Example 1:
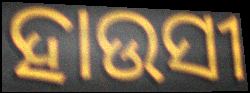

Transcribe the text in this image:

ହାଉସୀ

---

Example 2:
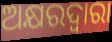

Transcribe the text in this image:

ଅକ୍ଷରଦ୍ଵାରା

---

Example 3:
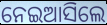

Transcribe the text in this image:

ନେଇଆସିଲେ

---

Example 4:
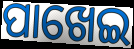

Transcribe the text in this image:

ପାଖେଇ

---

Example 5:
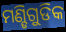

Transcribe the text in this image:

ମଣ୍ଡିଗୁଡିକ